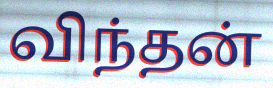
விந்தன்